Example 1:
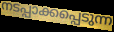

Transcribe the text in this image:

നടപ്പാക്കപ്പെടുന്ന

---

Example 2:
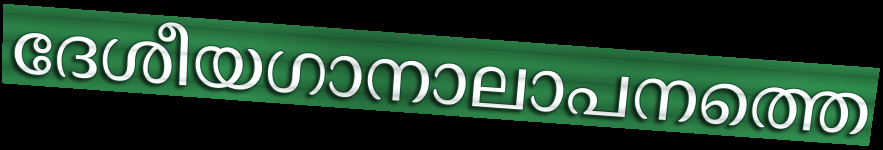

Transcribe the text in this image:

ദേശീയഗാനാലാപനത്തെ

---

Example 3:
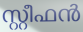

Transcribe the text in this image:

സ്റ്റീഫൻ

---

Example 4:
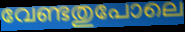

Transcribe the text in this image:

വേണ്ടതുപോലെ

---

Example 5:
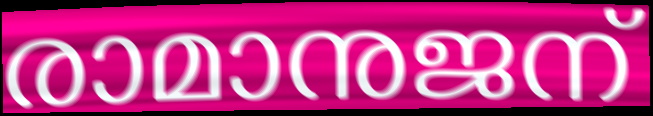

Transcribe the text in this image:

രാമാനുജന്